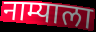
नाम्याला